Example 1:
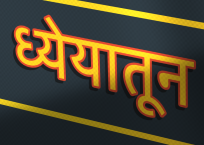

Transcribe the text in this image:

ध्येयातून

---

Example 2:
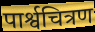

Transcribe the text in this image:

पार्श्वचित्रण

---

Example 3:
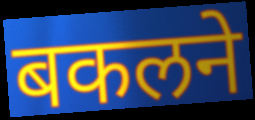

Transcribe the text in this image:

बकलने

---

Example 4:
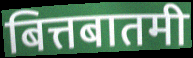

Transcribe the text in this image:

बित्तबातमी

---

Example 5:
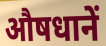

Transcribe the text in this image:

औषधानें